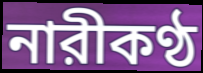
নারীকণ্ঠ